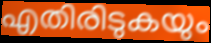
എതിരിടുകയും